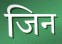
जिन